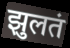
झुलतं